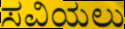
ಸವಿಯಲು